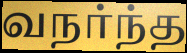
வநர்ந்த